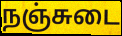
நஞ்சுடை